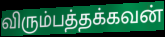
விரும்பத்தக்கவன்